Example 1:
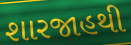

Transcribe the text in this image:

શારજાહથી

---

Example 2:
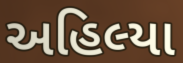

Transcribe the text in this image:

અહિલ્યા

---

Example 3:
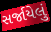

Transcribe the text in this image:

સર્જાયેલું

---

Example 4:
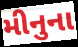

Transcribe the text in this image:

મીનુના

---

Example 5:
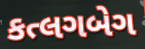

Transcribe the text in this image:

કત્લગબેગ